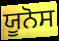
ਯੂਨੋਸ